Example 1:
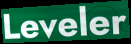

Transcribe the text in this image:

Leveler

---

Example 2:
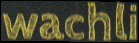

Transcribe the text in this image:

wachli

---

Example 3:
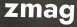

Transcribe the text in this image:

zmag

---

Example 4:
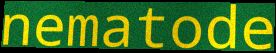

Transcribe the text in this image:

nematode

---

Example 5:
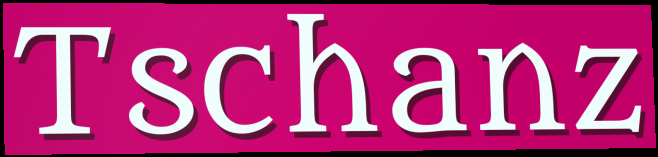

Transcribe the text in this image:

Tschanz